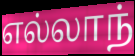
எல்லாந்